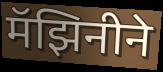
मॅझिनीने